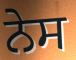
ਨੇਸ